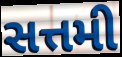
સત્તમી